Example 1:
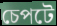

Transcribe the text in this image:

চেপটে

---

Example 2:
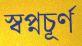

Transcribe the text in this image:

স্বপ্নচূর্ণ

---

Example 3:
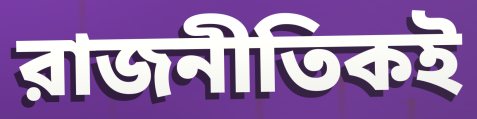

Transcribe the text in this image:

রাজনীতিকই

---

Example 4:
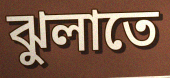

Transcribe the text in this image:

ঝুলাতে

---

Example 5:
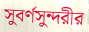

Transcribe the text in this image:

সুবর্ণসুন্দরীর